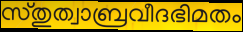
സ്തുത്വാബ്രവീദഭിമതം